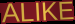
ALIKE